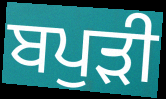
ਬਪੁੜੀ